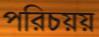
পরিচয়য়